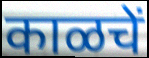
काळचें